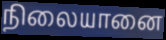
நிலையானை